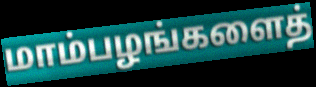
மாம்பழங்களைத்